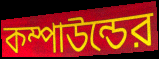
কম্পাউন্ডের